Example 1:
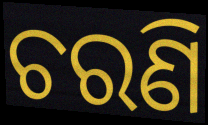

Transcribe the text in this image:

ଚରଣି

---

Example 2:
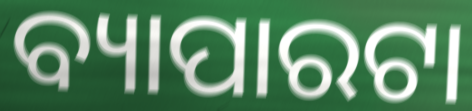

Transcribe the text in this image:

ବ୍ୟାପାରଟା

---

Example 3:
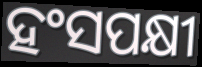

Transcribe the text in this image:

ହଂସପକ୍ଷୀ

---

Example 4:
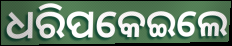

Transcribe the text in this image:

ଧରିପକେଇଲେ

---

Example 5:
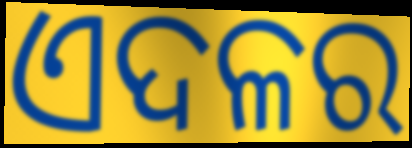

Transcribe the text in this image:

ଏଦଳର